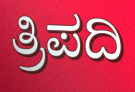
ತ್ರಿಪದಿ